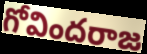
గోవిందరాజ